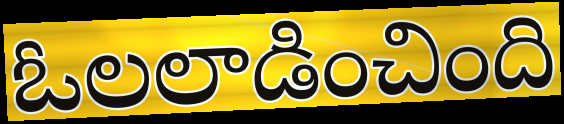
ఓలలాడించింది